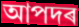
আপদৰ